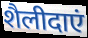
शैलीदाएं